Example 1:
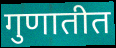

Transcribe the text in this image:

गुणातीत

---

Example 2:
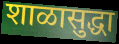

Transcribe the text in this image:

शाळासुद्धा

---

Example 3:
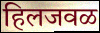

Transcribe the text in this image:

हिलजवळ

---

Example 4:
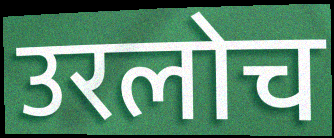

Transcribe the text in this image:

उरलोच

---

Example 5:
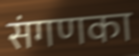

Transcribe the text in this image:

संगणका